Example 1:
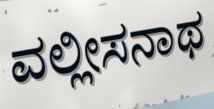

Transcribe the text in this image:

ವಲ್ಲೀಸನಾಥ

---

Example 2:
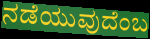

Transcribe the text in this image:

ನಡೆಯುವುದೆಂಬ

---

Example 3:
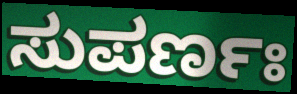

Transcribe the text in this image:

ಸುಪರ್ಣಃ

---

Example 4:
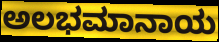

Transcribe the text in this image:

ಅಲಭಮಾನಾಯ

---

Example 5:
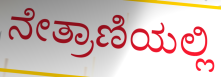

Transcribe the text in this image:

ನೇತ್ರಾಣಿಯಲ್ಲಿ